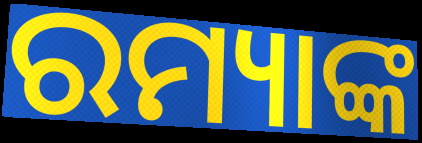
ରମ୍ୟାଙ୍କ